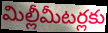
మిల్లీమీటర్లకు